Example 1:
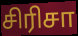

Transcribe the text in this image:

சிரிசா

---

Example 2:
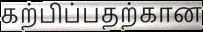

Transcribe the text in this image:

கற்பிப்பதற்கான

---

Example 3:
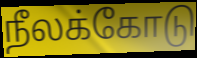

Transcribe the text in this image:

நீலக்கோடு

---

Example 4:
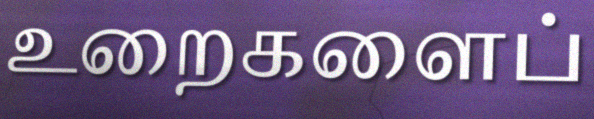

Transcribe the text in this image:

உறைகளைப்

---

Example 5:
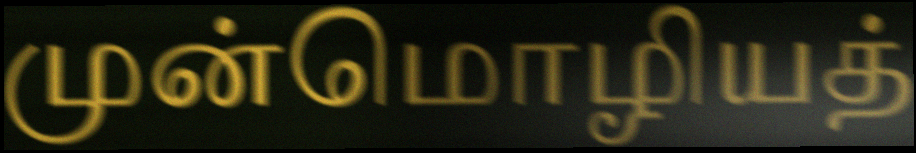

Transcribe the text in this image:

முன்மொழியத்